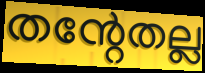
തന്റേതല്ല